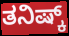
ತನಿಷ್ಕ್